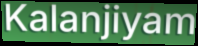
Kalanjiyam